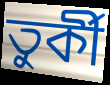
তুর্কী